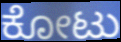
ಕೋಟು